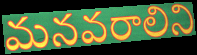
మనవరాలిని